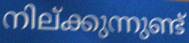
നില്ക്കുന്നുണ്ട്